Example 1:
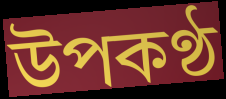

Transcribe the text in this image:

উপকণ্ঠ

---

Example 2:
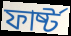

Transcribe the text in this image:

ফাৰ্ষ্ট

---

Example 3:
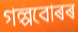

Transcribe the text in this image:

গল্পবোৰৰ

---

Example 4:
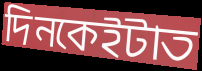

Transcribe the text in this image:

দিনকেইটাত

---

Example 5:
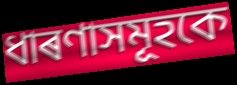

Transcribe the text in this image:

ধাৰণাসমূহকে